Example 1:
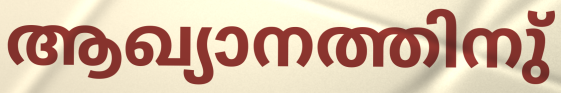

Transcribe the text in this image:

ആഖ്യാനത്തിനു്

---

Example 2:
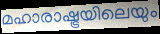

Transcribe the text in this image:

മഹാരാഷ്ട്രയിലെയും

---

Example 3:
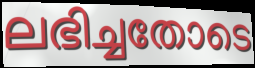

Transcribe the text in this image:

ലഭിച്ചതോടെ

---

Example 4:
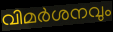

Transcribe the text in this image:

വിമർശനവും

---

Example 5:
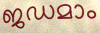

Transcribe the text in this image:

ജഡമാം